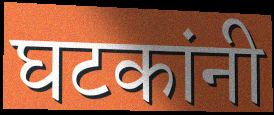
घटकांनी